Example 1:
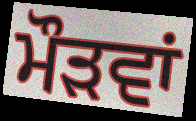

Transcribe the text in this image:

ਮੌੜਵਾਂ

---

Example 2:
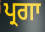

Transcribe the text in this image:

ਪ੍ਰਗਾ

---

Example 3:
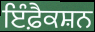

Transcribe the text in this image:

ਇੰਫ਼ੈਕਸ਼ਨ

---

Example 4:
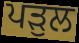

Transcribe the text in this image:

ਪੜੁਲ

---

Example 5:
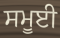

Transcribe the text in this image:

ਸਮੂਈ